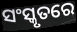
ସଂସ୍କୃତରେ